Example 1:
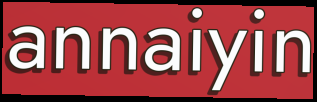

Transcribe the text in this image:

annaiyin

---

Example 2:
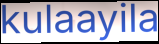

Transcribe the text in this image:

kulaayila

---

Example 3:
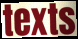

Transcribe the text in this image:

texts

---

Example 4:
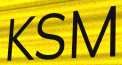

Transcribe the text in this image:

KSM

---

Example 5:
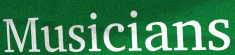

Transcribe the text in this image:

Musicians